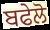
ਬਫੇਲੋ